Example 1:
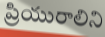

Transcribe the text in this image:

ప్రియురాలిని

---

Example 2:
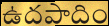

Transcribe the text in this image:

ఉదపాదిం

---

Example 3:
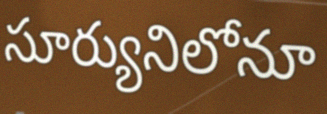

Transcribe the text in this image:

సూర్యునిలోనూ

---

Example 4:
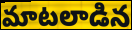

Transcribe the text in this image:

మాటలాడిన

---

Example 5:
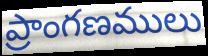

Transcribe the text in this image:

ప్రాంగణములు